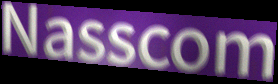
Nasscom